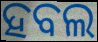
ହବଲ